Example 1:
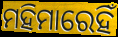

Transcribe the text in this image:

ମହିମାରେହିଁ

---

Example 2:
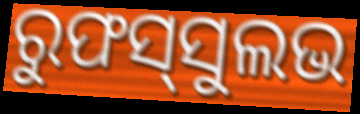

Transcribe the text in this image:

ରୁଫସ୍‌ସୁଲଭ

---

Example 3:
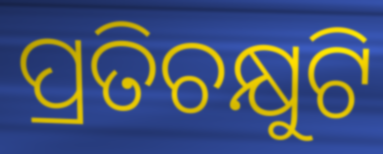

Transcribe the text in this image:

ପ୍ରତିଚକ୍ଷୁଟି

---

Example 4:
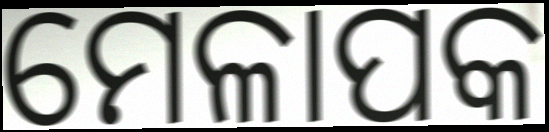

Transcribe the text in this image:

ମେଳାପକ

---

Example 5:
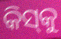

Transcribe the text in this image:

କିସ୍‌କୁ